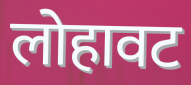
लोहावट